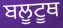
ਬਲੂਟੂਥ